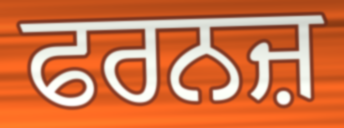
ਫਰਨਜ਼